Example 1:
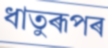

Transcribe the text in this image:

ধাতুৰূপৰ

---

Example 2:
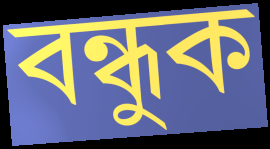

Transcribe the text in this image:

বন্ধুক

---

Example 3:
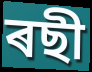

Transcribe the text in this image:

ৰছী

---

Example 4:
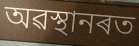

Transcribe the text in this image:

অৱস্থানৰত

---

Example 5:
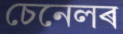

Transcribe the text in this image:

চেনেলৰ